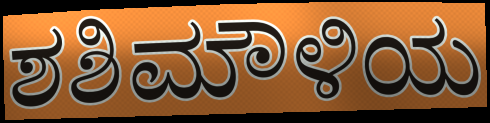
ಶಶಿಮೌಳಿಯ